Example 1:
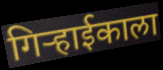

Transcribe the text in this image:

गिऱ्हाईकाला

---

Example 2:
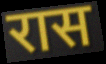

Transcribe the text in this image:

रास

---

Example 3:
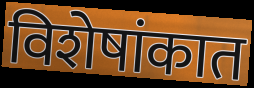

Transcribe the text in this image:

विशेषांकात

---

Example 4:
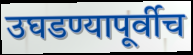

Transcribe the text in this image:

उघडण्यापूर्वीच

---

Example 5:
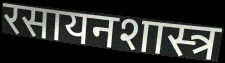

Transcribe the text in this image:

रसायनशास्त्र